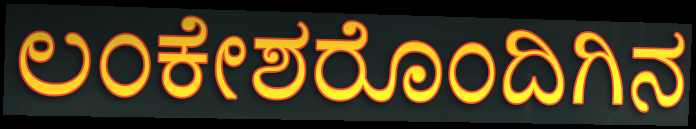
ಲಂಕೇಶರೊಂದಿಗಿನ